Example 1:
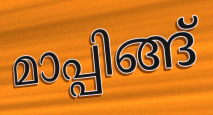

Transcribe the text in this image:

മാപ്പിങ്ങ്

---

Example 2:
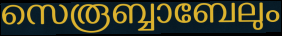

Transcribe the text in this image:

സെരൂബ്ബാബേലും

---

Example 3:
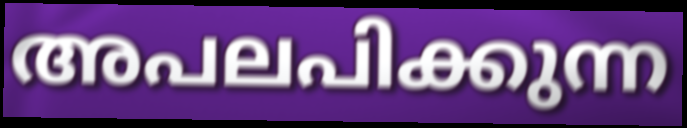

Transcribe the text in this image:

അപലപിക്കുന്ന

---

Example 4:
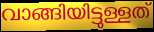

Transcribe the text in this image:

വാങ്ങിയിട്ടുള്ളത്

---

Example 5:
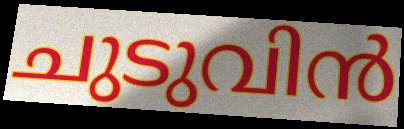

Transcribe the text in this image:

ചുടുവിൻ